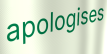
apologises